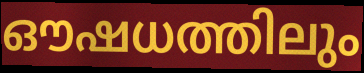
ഔഷധത്തിലും